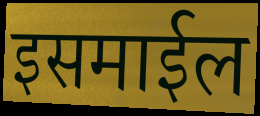
इसमाईल